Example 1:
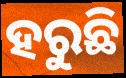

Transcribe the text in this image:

ହରୁଛି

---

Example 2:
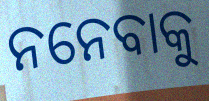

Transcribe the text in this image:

ନନେବାକୁ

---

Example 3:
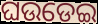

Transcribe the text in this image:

ଘଉଡେଇ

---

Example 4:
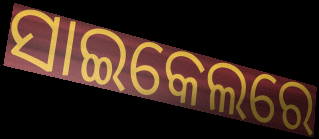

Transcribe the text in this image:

ସାଇକେଲରେ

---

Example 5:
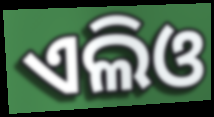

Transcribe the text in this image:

ଏଲିଓ